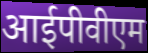
आईपीवीएम